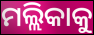
ମଲ୍ଲିକାକୁ